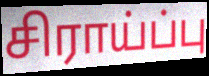
சிராய்ப்பு